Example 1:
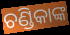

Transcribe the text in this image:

ଚଣ୍ଡିକାଙ୍କ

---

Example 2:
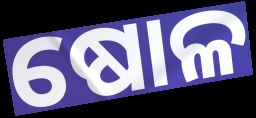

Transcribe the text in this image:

ଷୋଳ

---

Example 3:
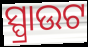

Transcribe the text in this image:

ସ୍ପ୍ରାଉଟ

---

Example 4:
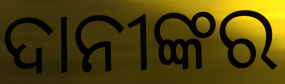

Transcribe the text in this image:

ଦାନୀଙ୍କର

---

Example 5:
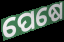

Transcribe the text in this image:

ପେଷେ